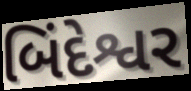
બિંદેશ્વર